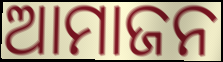
ଆମାଜନ